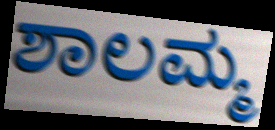
ಶಾಲಮ್ಮ